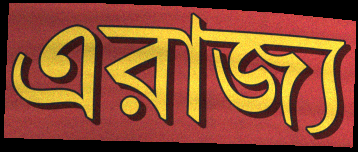
এরাজ্য